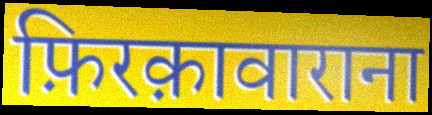
फ़िरक़ावाराना